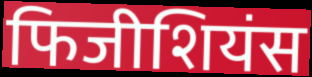
फिजीशियंस